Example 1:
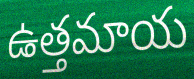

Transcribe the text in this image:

ఉత్తమాయ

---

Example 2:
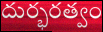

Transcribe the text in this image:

దుర్భరత్వం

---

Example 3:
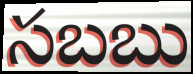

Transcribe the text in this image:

సబబు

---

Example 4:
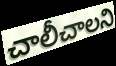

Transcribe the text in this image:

చాలీచాలని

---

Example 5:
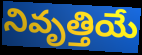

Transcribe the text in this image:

నివృత్తియే